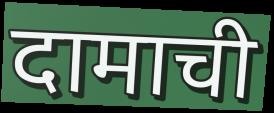
दामाची